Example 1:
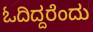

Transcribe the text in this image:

ಓದಿದ್ದರೆಂದು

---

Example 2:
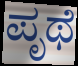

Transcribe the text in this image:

ಪೃಥೆ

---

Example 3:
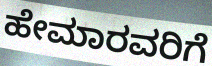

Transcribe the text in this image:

ಹೇಮಾರವರಿಗೆ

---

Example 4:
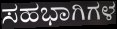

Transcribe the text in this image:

ಸಹಭಾಗಿಗಳ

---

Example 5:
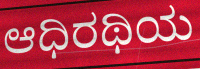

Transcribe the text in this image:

ಆಧಿರಥಿಯ